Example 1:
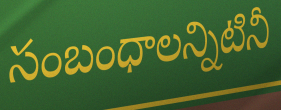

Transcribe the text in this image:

సంబంధాలన్నిటినీ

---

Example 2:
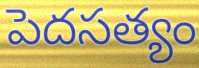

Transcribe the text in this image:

పెదసత్యం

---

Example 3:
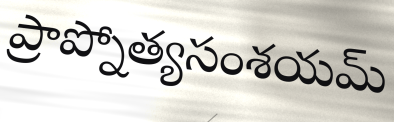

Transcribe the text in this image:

ప్రాప్నోత్యసంశయమ్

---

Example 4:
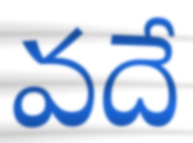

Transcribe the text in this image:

వదే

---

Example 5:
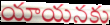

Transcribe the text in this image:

యాయనకు